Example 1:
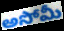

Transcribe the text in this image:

అసోమీ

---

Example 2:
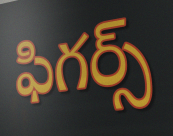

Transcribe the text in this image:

ఫిగర్స్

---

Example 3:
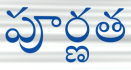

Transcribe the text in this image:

పూర్ణత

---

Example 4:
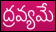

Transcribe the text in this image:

ద్రవ్యమే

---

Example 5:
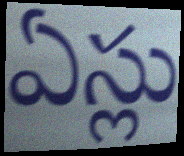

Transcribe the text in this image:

ఏస్లు